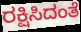
ರಕ್ಷಿಸಿದಂತೆ